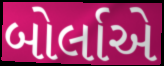
બોર્લાએ